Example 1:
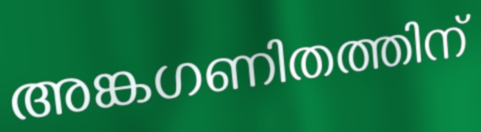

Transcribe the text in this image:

അങ്കഗണിതത്തിന്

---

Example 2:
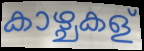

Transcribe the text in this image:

കാഴ്ചകള്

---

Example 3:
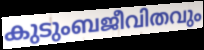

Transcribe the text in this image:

കുടുംബജീവിതവും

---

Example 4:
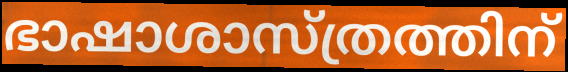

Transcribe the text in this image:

ഭാഷാശാസ്ത്രത്തിന്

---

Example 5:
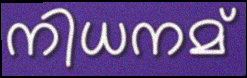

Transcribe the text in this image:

നിധനമ്